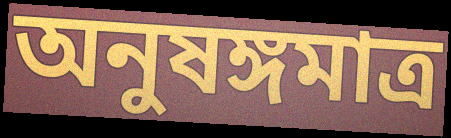
অনুষঙ্গমাত্র